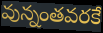
వున్నంతవరకే